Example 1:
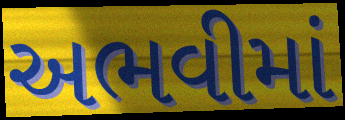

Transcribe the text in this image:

અભવીમાં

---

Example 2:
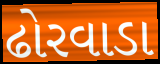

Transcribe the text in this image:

ઢોરવાડા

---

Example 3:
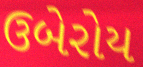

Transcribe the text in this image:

ઉબેરોય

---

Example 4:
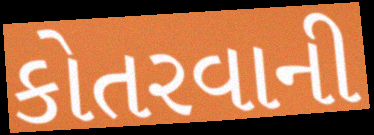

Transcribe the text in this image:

કોતરવાની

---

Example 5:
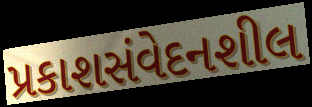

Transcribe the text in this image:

પ્રકાશસંવેદનશીલ